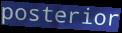
posterior